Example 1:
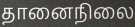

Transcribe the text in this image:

தானைநிலை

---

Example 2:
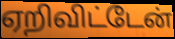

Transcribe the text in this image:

ஏறிவிட்டேன்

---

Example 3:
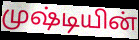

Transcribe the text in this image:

முஷ்டியின்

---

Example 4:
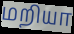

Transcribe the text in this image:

மறியா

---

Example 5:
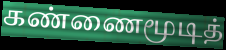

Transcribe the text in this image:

கண்ணைமூடித்